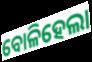
ବୋଳିହେଲା